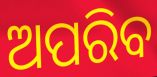
ଅପରିବ